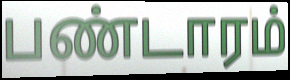
பண்டாரம்